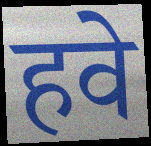
हवे